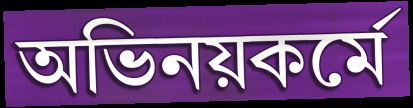
অভিনয়কর্মে